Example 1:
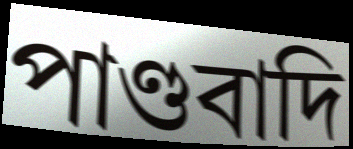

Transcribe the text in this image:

পাণ্ডবাদি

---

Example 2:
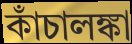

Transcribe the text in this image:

কাঁচালঙ্কা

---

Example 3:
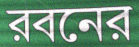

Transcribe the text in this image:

রবনের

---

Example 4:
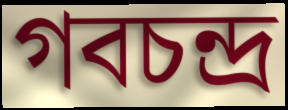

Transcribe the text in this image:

গবচন্দ্র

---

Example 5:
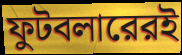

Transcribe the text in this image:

ফুটবলারেরই